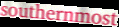
southernmost